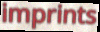
imprints